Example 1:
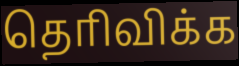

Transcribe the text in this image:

தெரிவிக்க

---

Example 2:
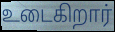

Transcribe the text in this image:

உடைகிறார்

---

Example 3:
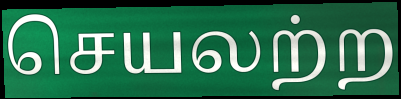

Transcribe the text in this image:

செயலற்ற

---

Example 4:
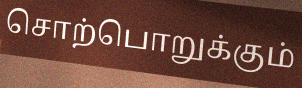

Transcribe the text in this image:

சொற்பொறுக்கும்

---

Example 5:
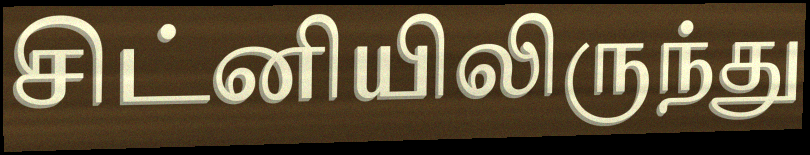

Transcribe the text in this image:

சிட்னியிலிருந்து